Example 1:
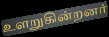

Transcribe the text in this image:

உளறுகின்றனர்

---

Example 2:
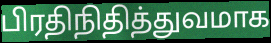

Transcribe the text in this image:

பிரதிநிதித்துவமாக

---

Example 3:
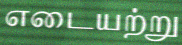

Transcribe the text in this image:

எடையற்று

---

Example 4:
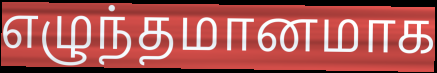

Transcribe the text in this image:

எழுந்தமானமாக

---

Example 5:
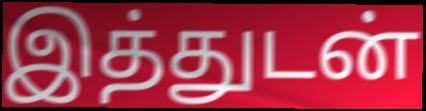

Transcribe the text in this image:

இத்துடன்